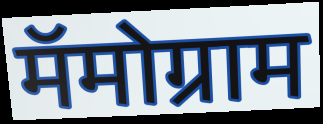
मॅमोग्राम